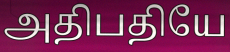
அதிபதியே